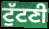
ਟੁੱਟਣੀ